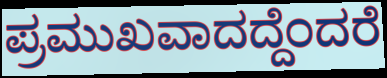
ಪ್ರಮುಖವಾದದ್ದೆಂದರೆ